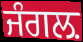
ਜੰਗਲ਼